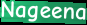
Nageena